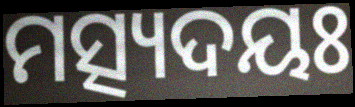
ମତ୍ସ୍ୟଦୟଃ